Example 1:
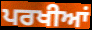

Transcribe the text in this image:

ਪਰਖੀਆਂ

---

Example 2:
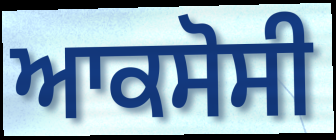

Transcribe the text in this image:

ਆਕਸੋਸੀ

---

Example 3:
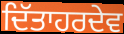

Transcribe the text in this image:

ਦਿੱਤਾਹਰਦੇਵ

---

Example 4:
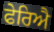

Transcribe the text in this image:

ਫੇਰਿਐ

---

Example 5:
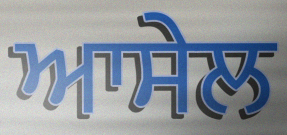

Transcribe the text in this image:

ਆਸੇਲ